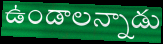
ఉండాలన్నాడు